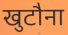
खुटौना